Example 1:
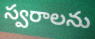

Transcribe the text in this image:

స్వరాలను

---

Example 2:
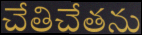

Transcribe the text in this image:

చేతిచేతను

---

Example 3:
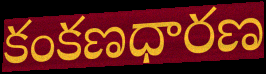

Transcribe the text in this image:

కంకణధారణ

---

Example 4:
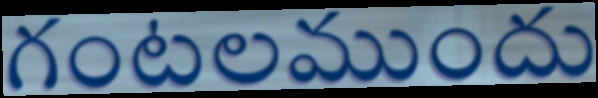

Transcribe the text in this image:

గంటలముందు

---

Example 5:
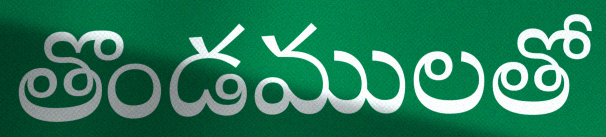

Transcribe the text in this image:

తొండములతో